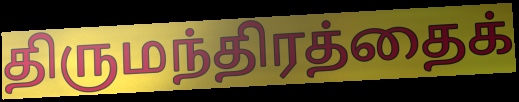
திருமந்திரத்தைக்